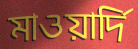
মাওয়ার্দি